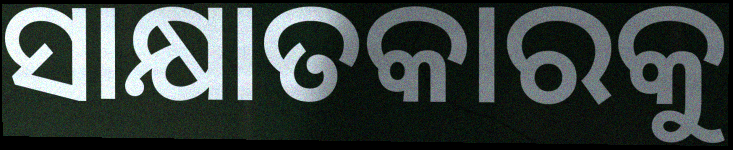
ସାକ୍ଷାତକାରକୁ